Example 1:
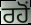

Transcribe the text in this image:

ਰਹੋਂ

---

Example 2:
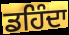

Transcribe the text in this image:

ਡਹਿੰਦਾ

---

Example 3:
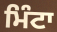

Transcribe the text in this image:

ਮਿੰਟਾ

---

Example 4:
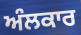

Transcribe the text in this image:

ਅੰਲਕਾਰ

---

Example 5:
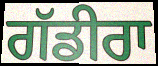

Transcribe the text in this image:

ਗੱਡੀਰਾ